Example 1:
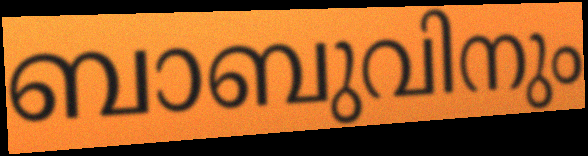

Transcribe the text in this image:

ബാബുവിനും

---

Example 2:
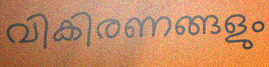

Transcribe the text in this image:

വികിരണങ്ങളും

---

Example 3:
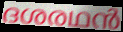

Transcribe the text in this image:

ദശരഥൻ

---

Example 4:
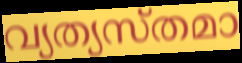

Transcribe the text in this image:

വ്യത്യസ്തമാ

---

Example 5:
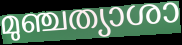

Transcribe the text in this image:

മുഞ്ചത്യാശാ